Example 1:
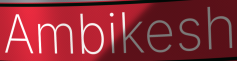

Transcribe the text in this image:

Ambikesh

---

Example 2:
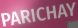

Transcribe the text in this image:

PARICHAY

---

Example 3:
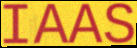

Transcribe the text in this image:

IAAS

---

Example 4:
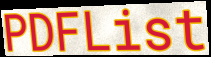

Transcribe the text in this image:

PDFList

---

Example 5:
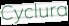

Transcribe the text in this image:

Cyclura